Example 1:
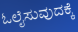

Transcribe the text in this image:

ಓಲೈಸುವುದಕ್ಕೆ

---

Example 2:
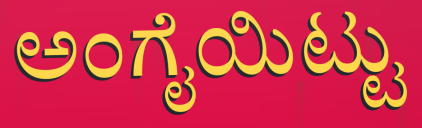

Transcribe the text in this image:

ಅಂಗೈಯಿಟ್ಟು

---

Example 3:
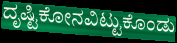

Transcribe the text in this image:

ದೃಷ್ಟಿಕೋನವಿಟ್ಟುಕೊಂಡು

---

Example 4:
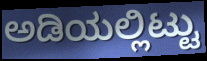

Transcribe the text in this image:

ಅಡಿಯಲ್ಲಿಟ್ಟು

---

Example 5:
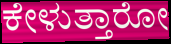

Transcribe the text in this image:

ಕೇಳುತ್ತಾರೋ